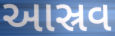
આસ્રવ